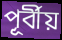
পূর্বীয়